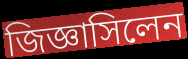
জিজ্ঞাসিলেন